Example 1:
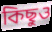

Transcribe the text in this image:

কিছুও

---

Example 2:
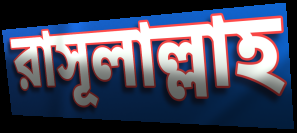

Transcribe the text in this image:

রাসূলাল্লাহ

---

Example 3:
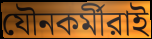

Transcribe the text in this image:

যৌনকর্মীরাই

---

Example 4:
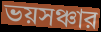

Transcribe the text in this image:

ভয়সঞ্চার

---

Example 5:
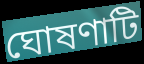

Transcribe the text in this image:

ঘোষণাটি